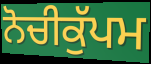
ਨੋਚੀਕੁੱਪਮ